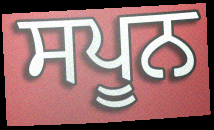
ਸਪੂਨ